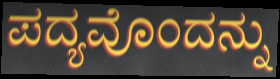
ಪದ್ಯವೊಂದನ್ನು